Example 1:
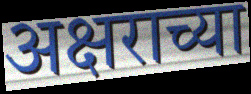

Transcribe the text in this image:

अक्षराच्या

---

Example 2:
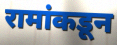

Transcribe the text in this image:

रामांकडून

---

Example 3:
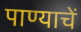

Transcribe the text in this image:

पाण्याचें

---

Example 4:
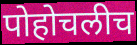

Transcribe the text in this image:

पोहोचलीच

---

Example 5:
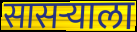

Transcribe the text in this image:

सासर्‍याला